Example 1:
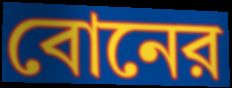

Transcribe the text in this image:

বোনের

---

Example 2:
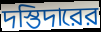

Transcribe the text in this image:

দস্তিদারের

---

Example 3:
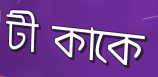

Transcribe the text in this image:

টীকাকে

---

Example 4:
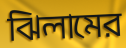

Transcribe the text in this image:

ঝিলামের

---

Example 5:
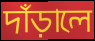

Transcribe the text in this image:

দাঁড়ালে